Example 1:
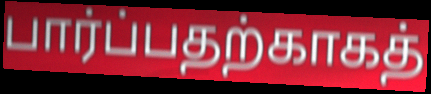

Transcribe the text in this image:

பார்ப்பதற்காகத்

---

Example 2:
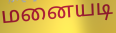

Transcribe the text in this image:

மனையடி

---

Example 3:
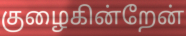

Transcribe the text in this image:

குழைகின்றேன்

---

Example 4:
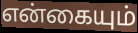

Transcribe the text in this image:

என்கையும்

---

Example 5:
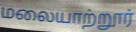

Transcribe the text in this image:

மலையாற்றூர்